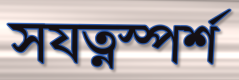
সযত্নস্পর্শ